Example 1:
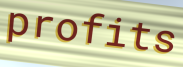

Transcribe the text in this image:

profits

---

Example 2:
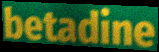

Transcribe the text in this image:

betadine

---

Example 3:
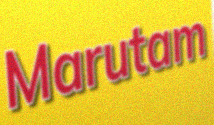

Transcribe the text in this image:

Marutam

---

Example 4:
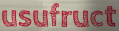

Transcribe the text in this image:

usufruct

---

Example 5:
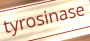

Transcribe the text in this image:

tyrosinase